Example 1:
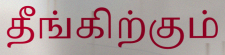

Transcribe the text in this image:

தீங்கிற்கும்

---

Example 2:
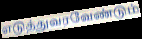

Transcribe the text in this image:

எடுத்துவரவேண்டும்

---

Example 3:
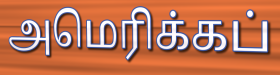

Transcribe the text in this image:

அமெரிக்கப்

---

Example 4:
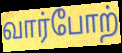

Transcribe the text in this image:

வார்போற்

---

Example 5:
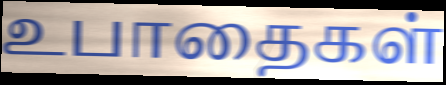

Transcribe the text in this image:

உபாதைகள்